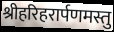
श्रीहरिहरार्पणमस्तु